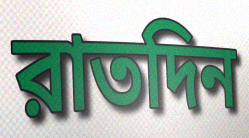
রাতদিন